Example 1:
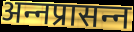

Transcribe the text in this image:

अन्नप्रासन्न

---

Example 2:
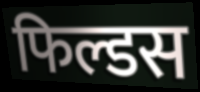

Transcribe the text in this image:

फिल्डस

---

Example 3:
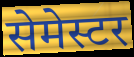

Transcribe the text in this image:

सेमेस्टर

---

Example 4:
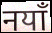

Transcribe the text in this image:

नयाँ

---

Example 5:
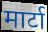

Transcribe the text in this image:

मार्टा